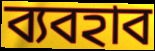
ব্যবহাব